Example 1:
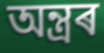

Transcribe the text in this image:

অন্ত্ৰৰ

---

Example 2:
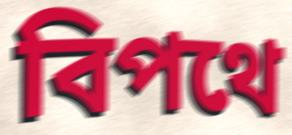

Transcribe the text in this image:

বিপথে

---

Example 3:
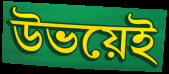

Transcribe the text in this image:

উভয়েই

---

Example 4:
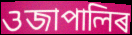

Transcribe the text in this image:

ওজাপালিৰ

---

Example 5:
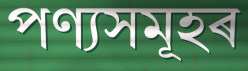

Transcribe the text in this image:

পণ্যসমূহৰ